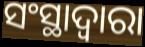
ସଂସ୍ଥାଦ୍ୱାରା